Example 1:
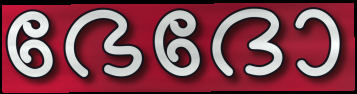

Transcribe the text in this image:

ഭേദോ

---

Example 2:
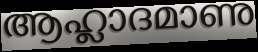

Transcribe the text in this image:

ആഹ്ലാദമാണു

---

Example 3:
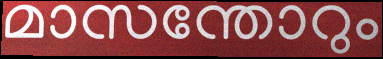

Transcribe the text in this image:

മാസന്തോറും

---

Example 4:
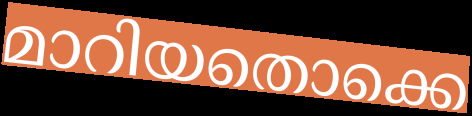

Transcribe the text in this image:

മാറിയതൊക്കെ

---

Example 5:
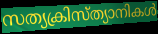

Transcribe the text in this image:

സത്യക്രിസ്ത്യാനികൾ